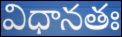
విధానతః